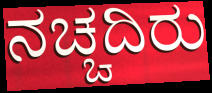
ನಚ್ಚದಿರು